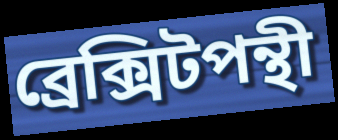
ব্রেক্সিটপন্থী